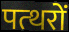
पत्‍थरों